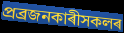
প্ৰব্ৰজনকাৰীসকলৰ